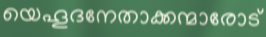
യെഹൂദനേതാക്കന്മാരോട്